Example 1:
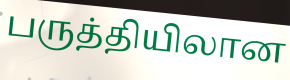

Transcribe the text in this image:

பருத்தியிலான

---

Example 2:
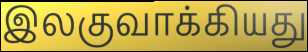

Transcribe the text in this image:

இலகுவாக்கியது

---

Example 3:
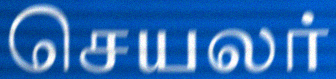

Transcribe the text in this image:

செயலர்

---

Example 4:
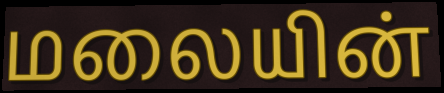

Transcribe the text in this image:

மலையின்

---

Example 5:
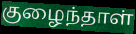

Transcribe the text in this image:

குழைந்தாள்